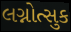
લગ્નોત્સુક